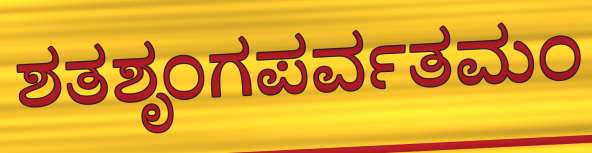
ಶತಶೃಂಗಪರ್ವತಮಂ